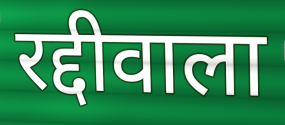
रद्दीवाला